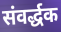
संवर्द्धक